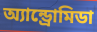
অ্যান্ড্রোমিডা